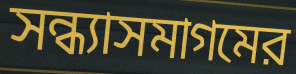
সন্ধ্যাসমাগমের